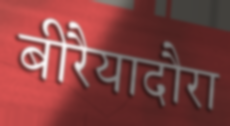
बीरैयादौरा